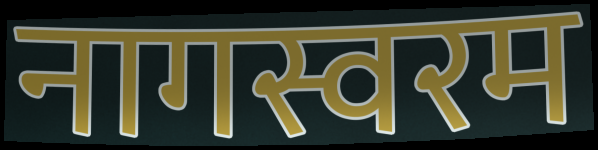
नागस्वरम